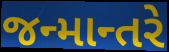
જન્માન્તરે